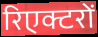
रिएक्टरों